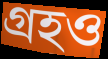
গ্রহও